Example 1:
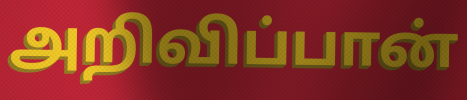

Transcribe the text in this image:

அறிவிப்பான்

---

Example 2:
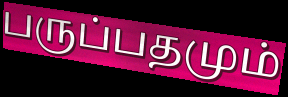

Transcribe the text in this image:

பருப்பதமும்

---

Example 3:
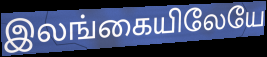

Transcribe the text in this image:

இலங்கையிலேயே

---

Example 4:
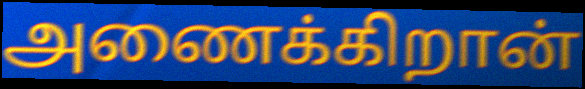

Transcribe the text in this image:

அணைக்கிறான்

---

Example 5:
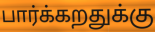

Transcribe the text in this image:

பார்க்கறதுக்கு